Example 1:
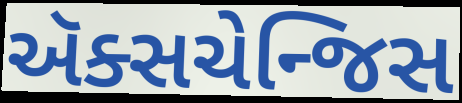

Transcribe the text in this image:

ઍક્સચેન્જિસ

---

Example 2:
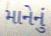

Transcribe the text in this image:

માનેનું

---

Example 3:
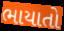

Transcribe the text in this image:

ભાયાતો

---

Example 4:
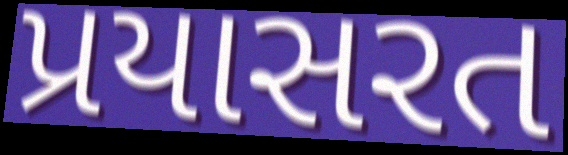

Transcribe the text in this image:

પ્રયાસરત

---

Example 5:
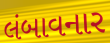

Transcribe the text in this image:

લંબાવનાર